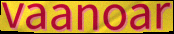
vaanoar